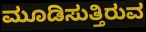
ಮೂಡಿಸುತ್ತಿರುವ